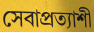
সেবাপ্রত্যাশী